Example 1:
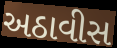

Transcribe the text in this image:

અઠાવીસ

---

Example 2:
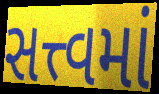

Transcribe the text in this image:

સત્ત્વમાં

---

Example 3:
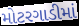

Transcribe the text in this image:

મોટરગાડીમાં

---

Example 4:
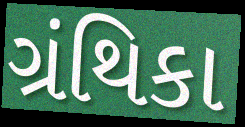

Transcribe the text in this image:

ગ્રંથિકા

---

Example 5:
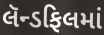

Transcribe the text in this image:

લૅન્ડફિલમાં